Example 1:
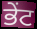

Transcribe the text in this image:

ਭੇਂਟ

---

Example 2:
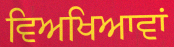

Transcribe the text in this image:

ਵਿਅਖਿਆਵਾਂ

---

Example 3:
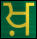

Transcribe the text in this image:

ਖ਼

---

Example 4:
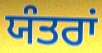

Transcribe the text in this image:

ਯੰਤਰਾਂ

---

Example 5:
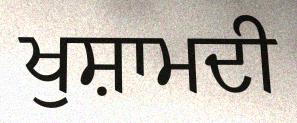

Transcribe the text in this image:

ਖੁਸ਼ਾਮਦੀ